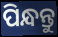
ପିନ୍ଧନ୍ତୁ